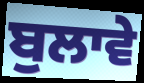
ਬੁਲਾਵੇ